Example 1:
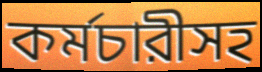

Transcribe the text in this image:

কর্মচারীসহ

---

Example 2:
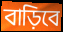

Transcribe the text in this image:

বাড়িবে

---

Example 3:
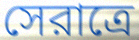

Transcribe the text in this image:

সেরাত্রে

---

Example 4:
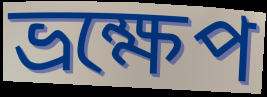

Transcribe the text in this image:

ভ্রক্ষেপ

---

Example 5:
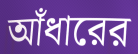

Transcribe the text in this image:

আঁধারের